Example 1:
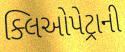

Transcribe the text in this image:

ક્લિઓપેટ્રાની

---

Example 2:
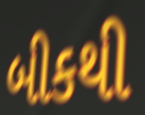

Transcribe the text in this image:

બીકથી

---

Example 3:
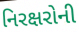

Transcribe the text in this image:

નિરક્ષરોની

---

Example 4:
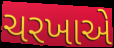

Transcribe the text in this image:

ચરખાએ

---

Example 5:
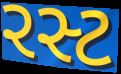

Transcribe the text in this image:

રસ્ટ